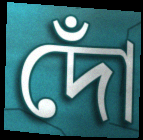
দোঁ